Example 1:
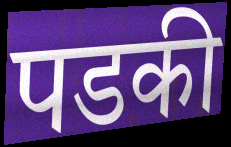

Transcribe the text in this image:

पडकी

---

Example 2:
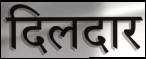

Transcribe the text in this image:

दिलदार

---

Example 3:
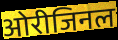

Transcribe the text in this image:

ओरीजिनल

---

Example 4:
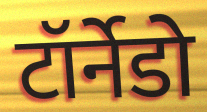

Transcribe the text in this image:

टॉर्नेडो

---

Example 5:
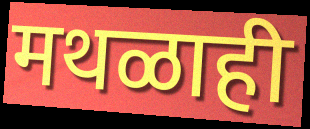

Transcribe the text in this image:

मथळाही